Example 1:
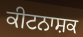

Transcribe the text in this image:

ਕੀਟਨਾਸ਼ਕ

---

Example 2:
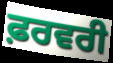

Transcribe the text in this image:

ਫ਼ਰਵਰੀ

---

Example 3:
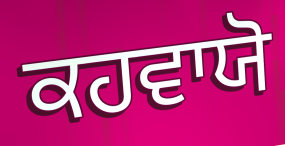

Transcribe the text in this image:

ਕਹਵਾਯੋ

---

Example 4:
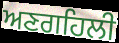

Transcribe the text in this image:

ਅਣਗਹਿਲੀ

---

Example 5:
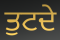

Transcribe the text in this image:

ਤੁਟਦੇ